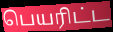
பெயரிட்ட